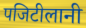
पजिटीलानी